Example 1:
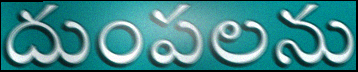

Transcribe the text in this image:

దుంపలను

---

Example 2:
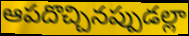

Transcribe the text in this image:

ఆపదొచ్చినప్పుడల్లా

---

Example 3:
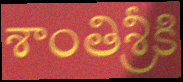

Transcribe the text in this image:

శాంతిశ్రీకి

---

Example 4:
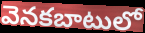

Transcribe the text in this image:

వెనకబాటులో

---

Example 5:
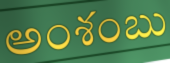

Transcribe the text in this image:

అంశంబు